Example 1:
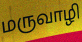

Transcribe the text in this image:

மருவாழி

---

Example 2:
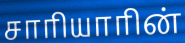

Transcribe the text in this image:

சாரியாரின்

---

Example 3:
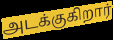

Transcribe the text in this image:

அடக்குகிறார்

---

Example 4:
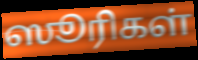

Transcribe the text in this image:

ஸூரிகள்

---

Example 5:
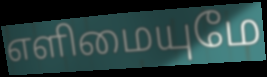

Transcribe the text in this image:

எளிமையுமே